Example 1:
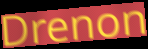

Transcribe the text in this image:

Drenon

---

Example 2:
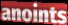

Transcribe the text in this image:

anoints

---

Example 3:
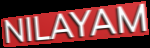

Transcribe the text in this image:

NILAYAM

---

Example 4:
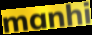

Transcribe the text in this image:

manhi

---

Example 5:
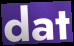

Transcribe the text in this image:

dat